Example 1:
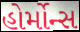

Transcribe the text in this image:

હોર્મોન્સ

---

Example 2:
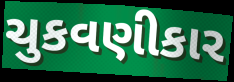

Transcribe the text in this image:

ચુકવણીકાર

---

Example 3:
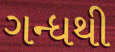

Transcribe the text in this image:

ગન્ધથી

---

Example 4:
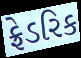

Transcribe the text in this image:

ફ્રેડરિક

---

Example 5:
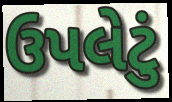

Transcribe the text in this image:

ઉપલેટું